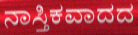
ನಾಸ್ತಿಕವಾದದ